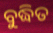
ବୁଦ୍ଧିତ